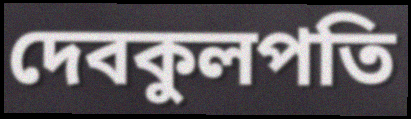
দেবকুলপতি